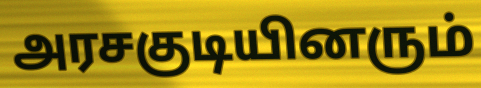
அரசகுடியினரும்